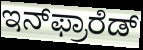
ಇನ್‌ಫ್ರಾರೆಡ್